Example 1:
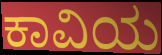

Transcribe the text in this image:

ಕಾವಿಯ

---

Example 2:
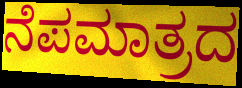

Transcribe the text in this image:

ನೆಪಮಾತ್ರದ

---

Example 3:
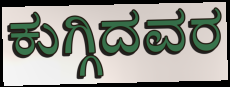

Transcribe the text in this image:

ಕುಗ್ಗಿದವರ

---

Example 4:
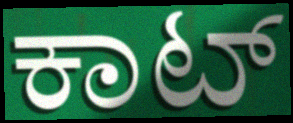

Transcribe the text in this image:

ಕಾಟ್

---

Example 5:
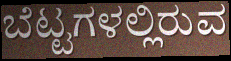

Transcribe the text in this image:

ಬೆಟ್ಟಗಳಲ್ಲಿರುವ